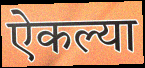
ऐकल्या